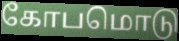
கோபமொடு